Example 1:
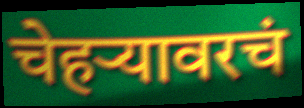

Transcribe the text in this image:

चेहर्‍यावरचं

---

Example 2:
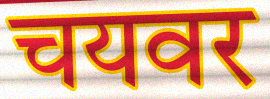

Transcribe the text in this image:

चयवर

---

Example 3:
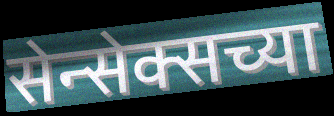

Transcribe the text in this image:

सेन्सेक्सच्या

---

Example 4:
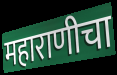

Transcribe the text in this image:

महाराणीचा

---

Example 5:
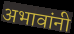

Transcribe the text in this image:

अभावांनी